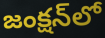
జంక్షన్‌లో